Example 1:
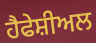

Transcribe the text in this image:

ਹੈਫੇਸ਼ੀਅਲ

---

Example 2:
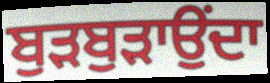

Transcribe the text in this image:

ਬੁੜਬੁੜਾਉਂਦਾ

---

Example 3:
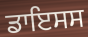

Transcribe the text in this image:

ਡਾਇਸਸ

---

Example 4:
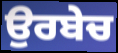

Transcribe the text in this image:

ਉਰਬੇਚ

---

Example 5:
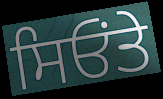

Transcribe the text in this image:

ਸਿਓਂਤੇ